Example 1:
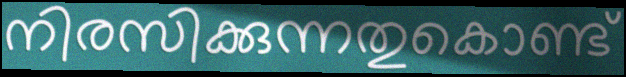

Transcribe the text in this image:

നിരസിക്കുന്നതുകൊണ്ട്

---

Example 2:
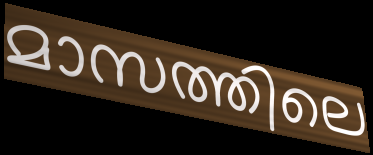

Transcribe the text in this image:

മാസത്തിലെ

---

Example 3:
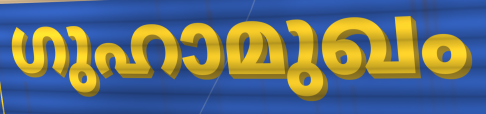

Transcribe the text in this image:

ഗുഹാമുഖം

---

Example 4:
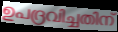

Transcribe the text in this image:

ഉപദ്രവിച്ചതിന്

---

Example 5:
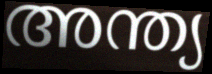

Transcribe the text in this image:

അന്ത്യ